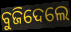
ବୁଜିଦେଲେ